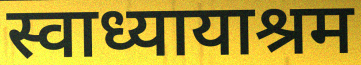
स्वाध्यायाश्रम